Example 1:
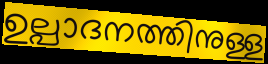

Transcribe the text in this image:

ഉല്പാദനത്തിനുള്ള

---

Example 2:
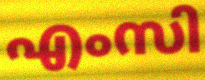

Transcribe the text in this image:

എംസി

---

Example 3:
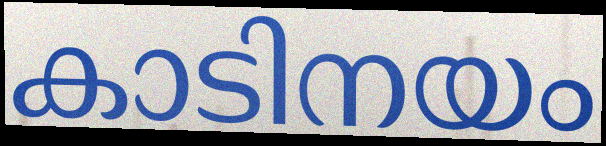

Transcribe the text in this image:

കാടിനയം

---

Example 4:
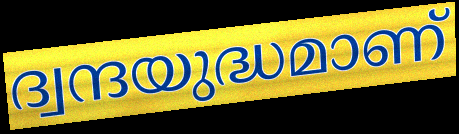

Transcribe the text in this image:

ദ്വന്ദയുദ്ധമാണ്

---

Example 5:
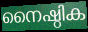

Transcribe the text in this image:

നൈഷ്ഠിക